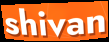
shivan